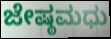
ಜೇಷ್ಠಮಧು